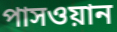
পাসওয়ান